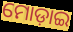
ମୋଡ଼ାଇ